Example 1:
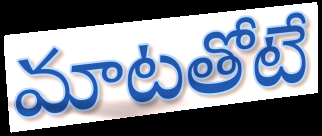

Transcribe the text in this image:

మాటతోటే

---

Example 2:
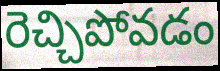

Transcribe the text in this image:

రెచ్చిపోవడం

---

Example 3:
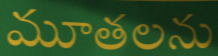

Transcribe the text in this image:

మూతలను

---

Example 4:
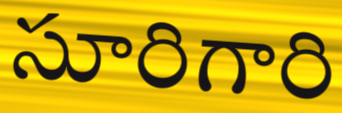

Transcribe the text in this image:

సూరిగారి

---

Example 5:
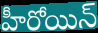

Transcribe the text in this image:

హీరోయిన్